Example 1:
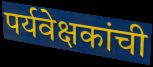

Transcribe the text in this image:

पर्यवेक्षकांची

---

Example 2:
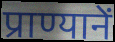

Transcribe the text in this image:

प्राण्यानें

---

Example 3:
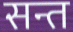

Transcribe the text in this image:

सन्त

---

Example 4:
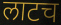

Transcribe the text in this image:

लाटच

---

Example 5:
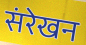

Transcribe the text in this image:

संरेखन